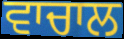
ਵਾਚਾਲ